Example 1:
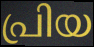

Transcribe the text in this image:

പ്രിയ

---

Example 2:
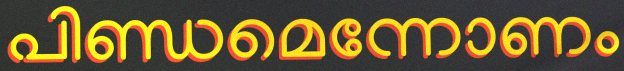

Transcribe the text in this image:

പിണ്ഡമെന്നോണം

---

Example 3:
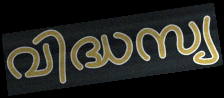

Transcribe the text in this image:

വിദ്ധസ്യ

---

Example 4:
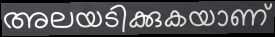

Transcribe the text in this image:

അലയടിക്കുകയാണ്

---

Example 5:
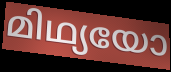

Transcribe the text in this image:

മിഥ്യയോ